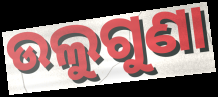
ଉଲୁଗୁଣା